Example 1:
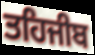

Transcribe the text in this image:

ਤਹਿਜੀਬ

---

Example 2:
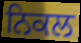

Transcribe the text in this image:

ਨਿਕਲ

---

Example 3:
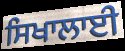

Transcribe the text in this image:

ਸਿਖਾਲਾਈ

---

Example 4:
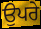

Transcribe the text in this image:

ਉਪਰੇ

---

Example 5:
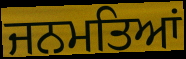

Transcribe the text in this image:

ਜਨਮਤਿਆਂ